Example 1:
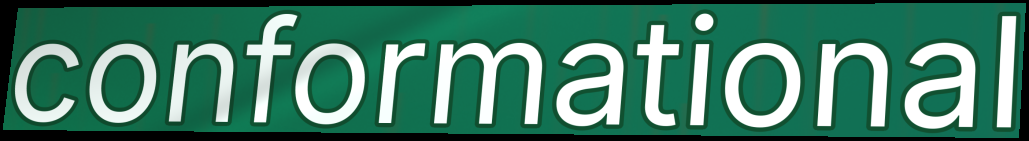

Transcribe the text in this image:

conformational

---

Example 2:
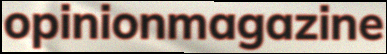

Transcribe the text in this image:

opinionmagazine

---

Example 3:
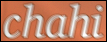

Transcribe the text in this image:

chahi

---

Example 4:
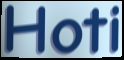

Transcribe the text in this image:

Hoti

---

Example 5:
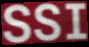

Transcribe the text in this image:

SSI